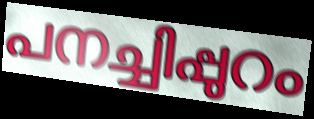
പനച്ചിപ്പുറം